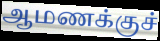
ஆமணக்குச்